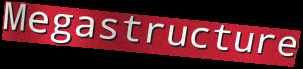
Megastructure